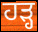
ਹੜ੍ਹ